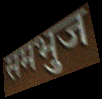
समभुज